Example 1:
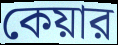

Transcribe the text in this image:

কেয়ার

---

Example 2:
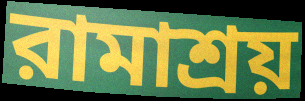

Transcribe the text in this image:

রামাশ্রয়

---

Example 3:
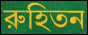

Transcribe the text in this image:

রুহিতন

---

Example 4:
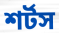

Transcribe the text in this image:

শর্টস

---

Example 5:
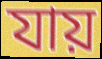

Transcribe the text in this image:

যায়